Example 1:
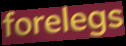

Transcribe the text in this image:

forelegs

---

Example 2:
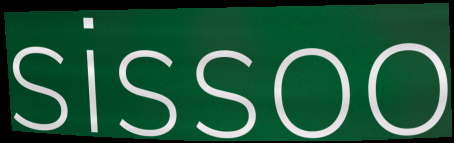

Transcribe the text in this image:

sissoo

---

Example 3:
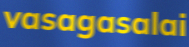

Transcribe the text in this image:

vasagasalai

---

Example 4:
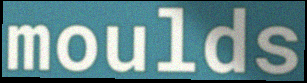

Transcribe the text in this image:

moulds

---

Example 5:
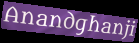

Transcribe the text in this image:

Anandghanji